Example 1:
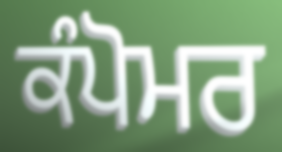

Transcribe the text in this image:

ਕੰਪੋਮਰ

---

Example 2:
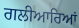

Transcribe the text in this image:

ਗਲੀਆਰਿਆਂ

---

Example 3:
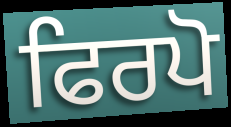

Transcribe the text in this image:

ਫਿਰਪੋ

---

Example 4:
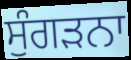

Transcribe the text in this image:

ਸੁੰਗੜਨਾ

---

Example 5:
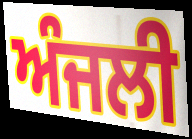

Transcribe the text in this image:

ਅੰਜਲੀ